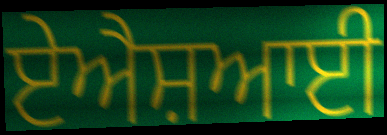
ਏਐਸ਼ਆਈ